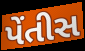
પેંતીસ